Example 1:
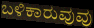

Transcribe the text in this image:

ಬಳಿಕಾರುವುವು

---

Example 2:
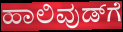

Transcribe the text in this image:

ಹಾಲಿವುಡ್‌ಗೆ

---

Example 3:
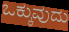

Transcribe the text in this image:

ಒಕ್ಕುವುದು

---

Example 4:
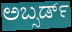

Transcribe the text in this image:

ಅಬ್ಸರ್ಡ್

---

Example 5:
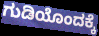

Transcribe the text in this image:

ಗುಡಿಯೊಂದಕ್ಕೆ